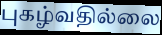
புகழ்வதில்லை